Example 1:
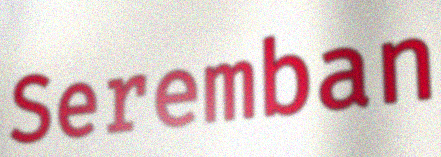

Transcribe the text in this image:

Seremban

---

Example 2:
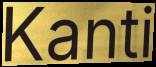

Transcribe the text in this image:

Kanti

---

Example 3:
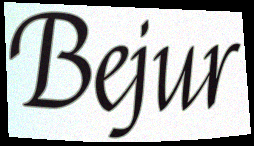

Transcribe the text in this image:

Bejur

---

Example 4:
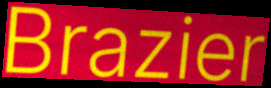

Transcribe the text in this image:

Brazier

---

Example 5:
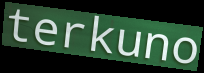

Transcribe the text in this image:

terkuno